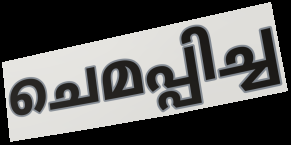
ചെമപ്പിച്ച